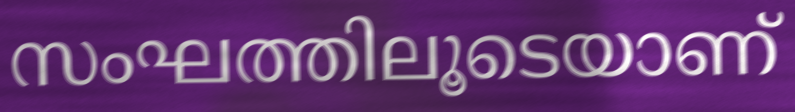
സംഘത്തിലൂടെയാണ്